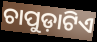
ଚାପୁଡ଼ାଟିଏ